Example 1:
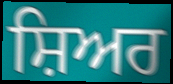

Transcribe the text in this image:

ਸ਼ਿਅਰ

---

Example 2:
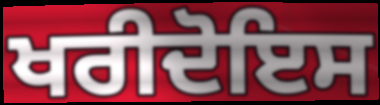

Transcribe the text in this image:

ਖਰੀਦੋਇਸ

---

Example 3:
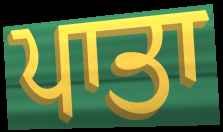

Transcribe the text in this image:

ਪਾਤਾ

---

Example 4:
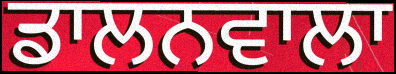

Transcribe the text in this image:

ਡਾਲਨਵਾਲਾ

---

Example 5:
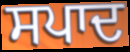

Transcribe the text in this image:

ਸਪਾਦ